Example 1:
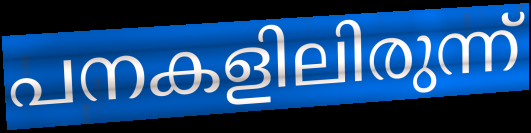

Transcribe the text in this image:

പനകളിലിരുന്ന്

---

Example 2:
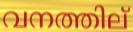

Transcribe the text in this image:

വനത്തില്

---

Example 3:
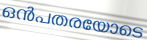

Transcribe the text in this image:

ഒൻപതരയോടെ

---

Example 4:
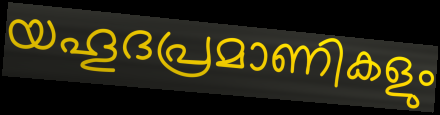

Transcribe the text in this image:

യഹൂദപ്രമാണികളും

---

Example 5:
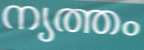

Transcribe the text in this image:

ന്യത്തം